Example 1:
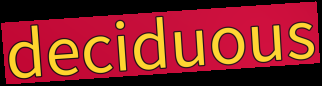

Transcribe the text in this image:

deciduous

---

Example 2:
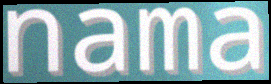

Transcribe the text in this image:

nama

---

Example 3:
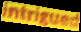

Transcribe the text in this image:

intrigued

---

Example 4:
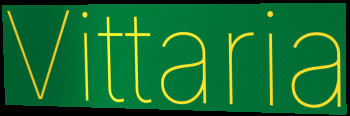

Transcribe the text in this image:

Vittaria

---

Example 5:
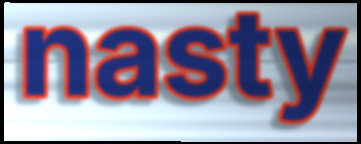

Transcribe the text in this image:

nasty